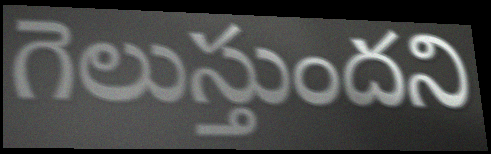
గెలుస్తుందని